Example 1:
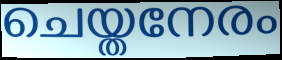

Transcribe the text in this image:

ചെയ്തനേരം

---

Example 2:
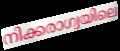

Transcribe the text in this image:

നിക്കരാഗ്വയിലെ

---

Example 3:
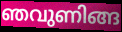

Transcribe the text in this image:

ഞവുണിങ്ങ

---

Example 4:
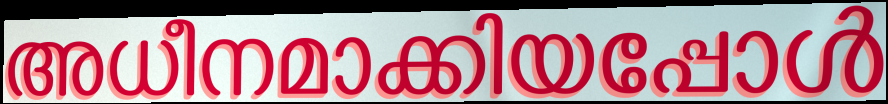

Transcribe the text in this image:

അധീനമാക്കിയപ്പോൾ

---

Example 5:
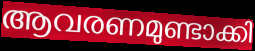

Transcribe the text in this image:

ആവരണമുണ്ടാക്കി